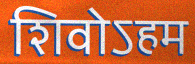
शिवोऽहम